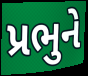
પ્રભુને